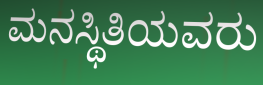
ಮನಸ್ಥಿತಿಯವರು